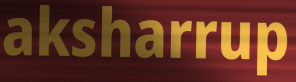
aksharrup